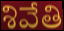
శివేతి